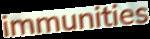
immunities